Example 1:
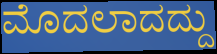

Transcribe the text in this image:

ಮೊದಲಾದದ್ದು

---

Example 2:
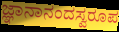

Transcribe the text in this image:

ಜ್ಞಾನಾನಂದಸ್ವರೂಪ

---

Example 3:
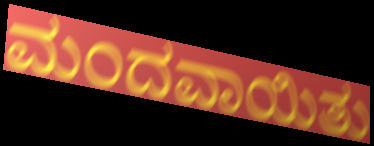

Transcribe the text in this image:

ಮಂದವಾಯಿತು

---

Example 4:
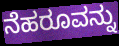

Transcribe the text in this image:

ನೆಹರೂವನ್ನು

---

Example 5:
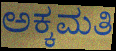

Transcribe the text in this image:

ಅಕ್ಕಮತಿ